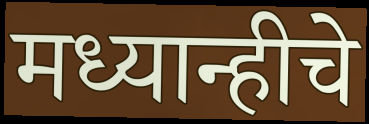
मध्यान्हीचे